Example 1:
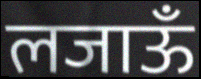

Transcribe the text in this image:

लजाऊँ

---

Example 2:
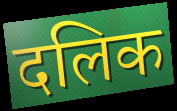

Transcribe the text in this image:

दलिक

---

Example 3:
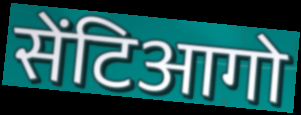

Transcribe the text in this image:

सेंटिआगो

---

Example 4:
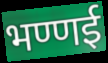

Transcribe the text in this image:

भण्णई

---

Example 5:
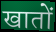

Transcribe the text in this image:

खातों